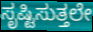
ಸೃಷ್ಟಿಸುತ್ತಲೇ